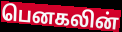
பெனகலின்